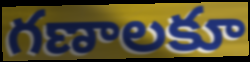
గణాలకూ